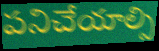
పనిచేయాల్సి